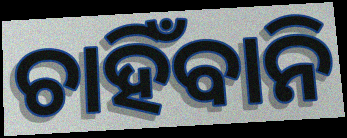
ଚାହିଁବାନି